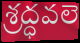
శ్రద్ధవలె